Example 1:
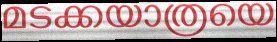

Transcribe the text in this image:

മടക്കയാത്രയെ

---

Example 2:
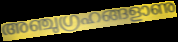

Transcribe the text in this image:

അഞ്ചുഗ്രഹങ്ങളാണു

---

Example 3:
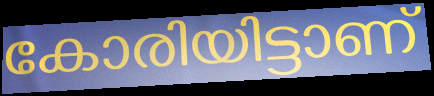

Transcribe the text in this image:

കോരിയിട്ടാണ്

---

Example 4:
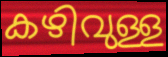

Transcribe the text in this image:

കഴിവുള്ള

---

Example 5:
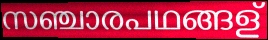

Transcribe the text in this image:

സഞ്ചാരപഥങ്ങള്